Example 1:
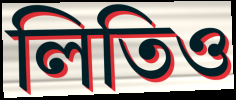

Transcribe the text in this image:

লিতিও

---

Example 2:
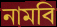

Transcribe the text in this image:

নামবি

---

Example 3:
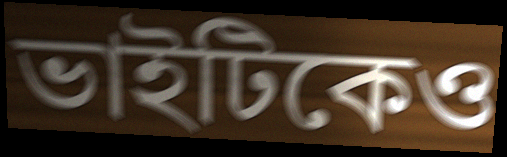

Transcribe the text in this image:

ভাইটিকেও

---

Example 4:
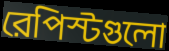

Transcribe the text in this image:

রেপিস্টগুলো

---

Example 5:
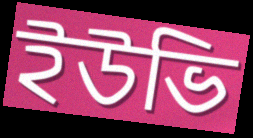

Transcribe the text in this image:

ইউভি